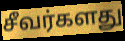
சீவர்களது